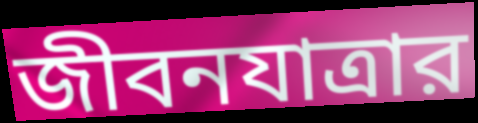
জীবনযাত্রার